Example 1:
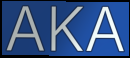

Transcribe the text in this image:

AKA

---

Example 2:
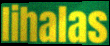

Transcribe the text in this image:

lihalas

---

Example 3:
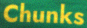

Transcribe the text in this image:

Chunks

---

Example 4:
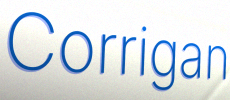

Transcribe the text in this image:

Corrigan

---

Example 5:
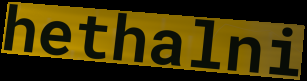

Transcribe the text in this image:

hethalni